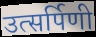
उत्सर्पिणी